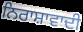
ਨਿਰਾਸ਼ਾਵਾਦੀ